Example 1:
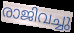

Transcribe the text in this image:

രാജിവച്ചു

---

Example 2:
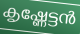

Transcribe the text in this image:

കൃഷ്ണേട്ടൻ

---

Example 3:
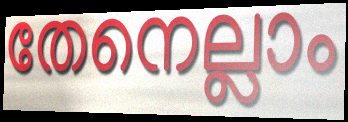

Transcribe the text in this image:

തേനെല്ലാം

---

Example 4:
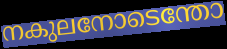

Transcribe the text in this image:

നകുലനോടെന്തോ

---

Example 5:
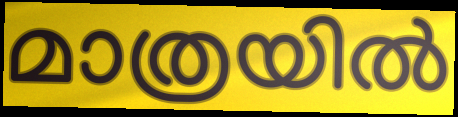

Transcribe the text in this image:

മാത്രയിൽ